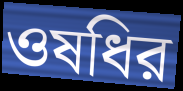
ওষধির